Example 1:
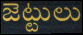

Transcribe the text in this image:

జెట్టులు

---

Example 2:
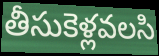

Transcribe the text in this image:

తీసుకెళ్లవలసి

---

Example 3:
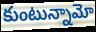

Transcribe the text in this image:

కుంటున్నామో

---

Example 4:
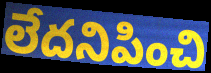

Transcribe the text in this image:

లేదనిపించి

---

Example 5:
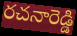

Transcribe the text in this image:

రచనారెడ్డి